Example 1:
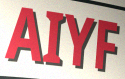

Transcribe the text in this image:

AIYF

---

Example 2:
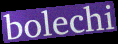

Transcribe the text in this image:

bolechi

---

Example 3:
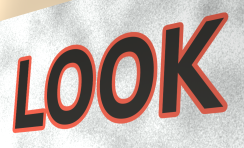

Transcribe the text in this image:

LOOK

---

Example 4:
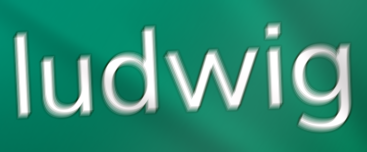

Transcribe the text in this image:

ludwig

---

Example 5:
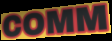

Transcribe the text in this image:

COMM